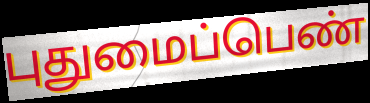
புதுமைப்பெண்